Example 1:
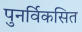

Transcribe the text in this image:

पुनर्विकसित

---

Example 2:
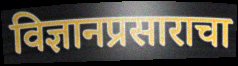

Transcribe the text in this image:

विज्ञानप्रसाराचा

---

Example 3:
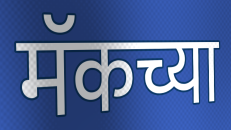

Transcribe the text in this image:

मॅकच्या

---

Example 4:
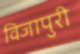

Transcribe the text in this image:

विजापुरी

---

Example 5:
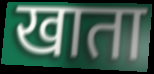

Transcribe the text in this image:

खाता